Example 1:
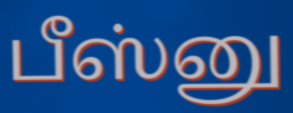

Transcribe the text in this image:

பீஸ்னு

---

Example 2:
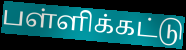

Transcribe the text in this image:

பள்ளிக்கட்டு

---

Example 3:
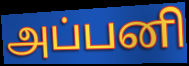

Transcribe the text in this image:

அப்பனி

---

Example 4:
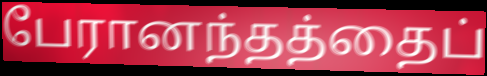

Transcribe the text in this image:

பேரானந்தத்தைப்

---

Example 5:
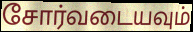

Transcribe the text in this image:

சோர்வடையவும்